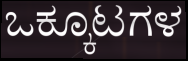
ಒಕ್ಕೂಟಗಳ